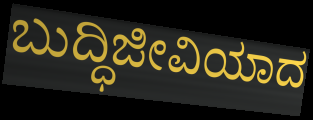
ಬುದ್ಧಿಜೀವಿಯಾದ